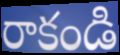
రాకండి